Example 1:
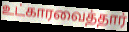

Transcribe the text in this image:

உட்காரவைத்தார்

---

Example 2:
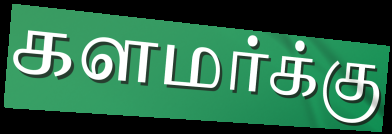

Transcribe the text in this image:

களமர்க்கு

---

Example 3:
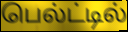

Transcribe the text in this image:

பெல்ட்டில்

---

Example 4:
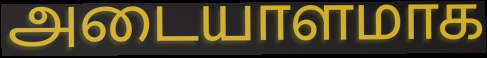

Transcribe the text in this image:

அடையாளமாக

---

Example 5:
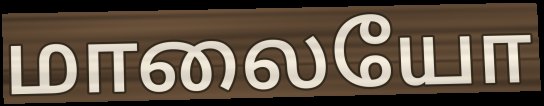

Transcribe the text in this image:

மாலையோ